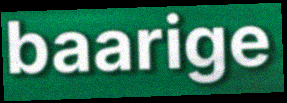
baarige